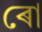
ৰো